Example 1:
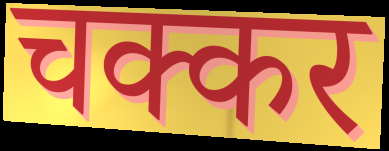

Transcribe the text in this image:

चक्कर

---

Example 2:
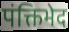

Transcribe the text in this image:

पंक्तिभेद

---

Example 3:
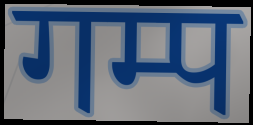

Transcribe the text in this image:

गम्प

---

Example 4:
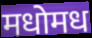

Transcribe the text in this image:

मधोमध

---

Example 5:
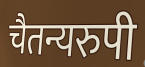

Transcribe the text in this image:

चैतन्यरुपी